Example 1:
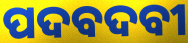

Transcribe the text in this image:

ପଦବଦବୀ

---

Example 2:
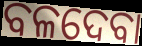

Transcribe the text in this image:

ବଳଦେବା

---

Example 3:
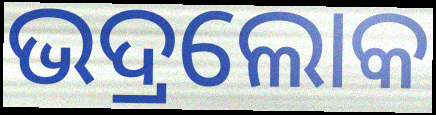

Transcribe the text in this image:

ଭଦ୍ରଲୋକ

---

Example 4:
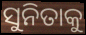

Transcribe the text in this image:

ସୁନିତାକୁ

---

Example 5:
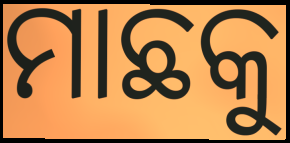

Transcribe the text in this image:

ମାଛକୁ